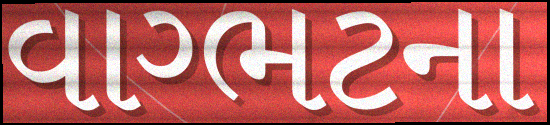
વાગ્ભટના